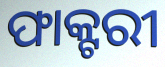
ଫାକ୍ଟରୀ